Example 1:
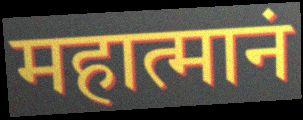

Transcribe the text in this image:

महात्मानं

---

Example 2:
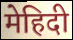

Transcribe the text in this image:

मेहिदी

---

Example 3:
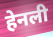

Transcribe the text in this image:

हेनली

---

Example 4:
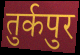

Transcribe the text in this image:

तुर्कपुर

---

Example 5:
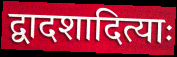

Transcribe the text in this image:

द्वादशादित्याः